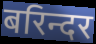
बरिन्दर